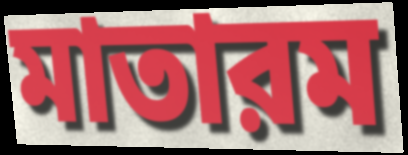
মাতারম